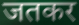
जतकर